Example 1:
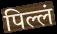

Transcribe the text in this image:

पिल्लं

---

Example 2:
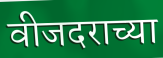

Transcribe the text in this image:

वीजदराच्या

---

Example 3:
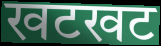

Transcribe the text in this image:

खटखट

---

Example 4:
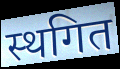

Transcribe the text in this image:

स्थगित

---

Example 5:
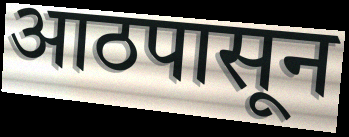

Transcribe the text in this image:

आठपासून